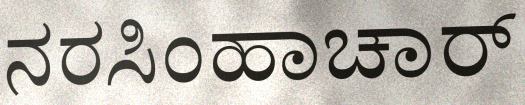
ನರಸಿಂಹಾಚಾರ್